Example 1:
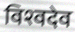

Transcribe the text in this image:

विश्वदेव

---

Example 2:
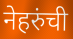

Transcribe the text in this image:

नेहरुंची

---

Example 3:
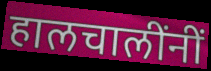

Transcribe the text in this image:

हालचालींनीं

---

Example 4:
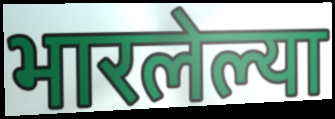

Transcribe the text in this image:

भारलेल्या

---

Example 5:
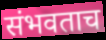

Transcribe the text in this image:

संभवताच